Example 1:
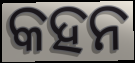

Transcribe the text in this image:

କହନ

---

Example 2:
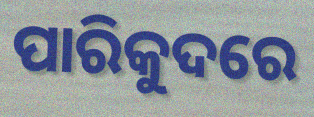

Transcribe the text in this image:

ପାରିକୁଦରେ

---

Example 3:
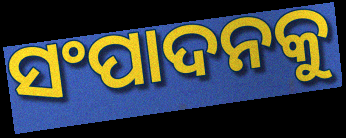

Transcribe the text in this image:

ସଂପାଦନକୁ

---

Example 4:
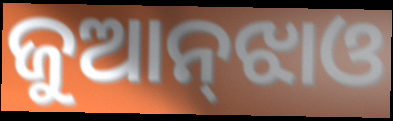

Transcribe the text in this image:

ଜୁଆନ୍‌ଝାଓ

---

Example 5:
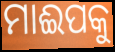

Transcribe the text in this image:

ମାଈପକୁ